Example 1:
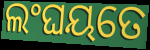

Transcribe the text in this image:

ଲଂଘୟତେ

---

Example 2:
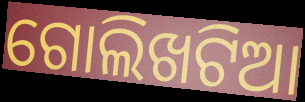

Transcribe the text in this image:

ଗୋଲିଖଟିଆ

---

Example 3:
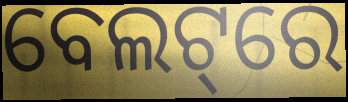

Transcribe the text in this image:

ବେଲଟ୍‌ରେ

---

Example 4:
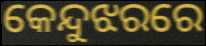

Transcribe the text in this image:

କେନ୍ଦୁଝରରେ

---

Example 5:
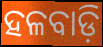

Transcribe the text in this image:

ହଳବାଡ଼ି